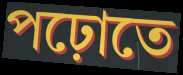
পঢ়োতে